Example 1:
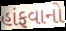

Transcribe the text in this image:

હાંફવાનો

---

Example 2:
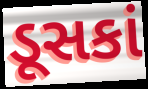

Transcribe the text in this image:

ડૂસકાં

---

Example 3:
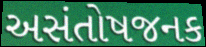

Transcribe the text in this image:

અસંતોષજનક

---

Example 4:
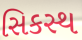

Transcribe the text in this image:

સિકસ્થ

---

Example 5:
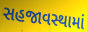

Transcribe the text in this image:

સહજાવસ્થામાં